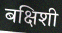
बक्षिशी